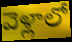
వెళ్లాలో